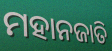
ମହାନଜାତି